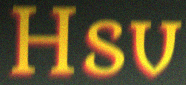
Hsu